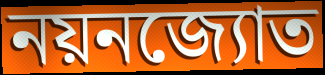
নয়নজ্যোত